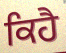
ਕਿਹੈ